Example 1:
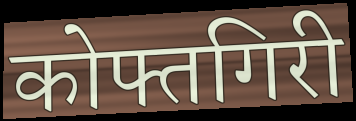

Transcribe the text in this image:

कोफ्तगिरी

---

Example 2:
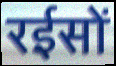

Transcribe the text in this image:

रईसों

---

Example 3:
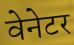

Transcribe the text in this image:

वेनेटर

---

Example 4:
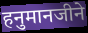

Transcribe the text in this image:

हनुमानजीने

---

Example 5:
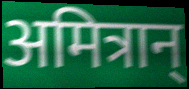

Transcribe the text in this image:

अमित्रान्